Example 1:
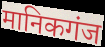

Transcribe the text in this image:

मानिकगंज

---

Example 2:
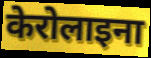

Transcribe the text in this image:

केरोलाइना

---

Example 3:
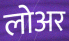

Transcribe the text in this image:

लोअर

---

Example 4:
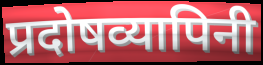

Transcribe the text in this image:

प्रदोषव्यापिनी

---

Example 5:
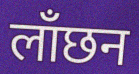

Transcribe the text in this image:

लाँछन